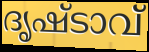
ദൃഷ്ടാവ്